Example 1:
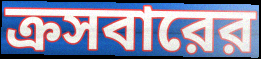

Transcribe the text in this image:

ক্রসবারের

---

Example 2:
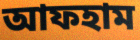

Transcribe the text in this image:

আফহাম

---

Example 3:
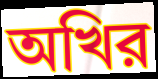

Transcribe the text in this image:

অখির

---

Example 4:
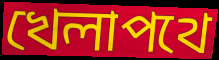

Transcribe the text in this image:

খেলাপথে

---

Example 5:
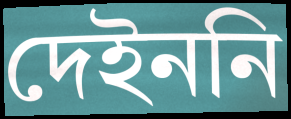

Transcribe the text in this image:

দেইননি